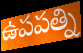
ఉపపత్ని